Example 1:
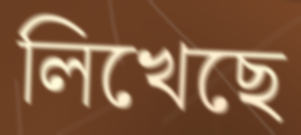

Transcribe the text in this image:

লিখেছে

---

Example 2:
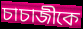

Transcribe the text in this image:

চাচাজীকে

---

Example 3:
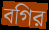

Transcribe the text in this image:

বগির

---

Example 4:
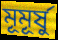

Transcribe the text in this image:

মূমূর্ষু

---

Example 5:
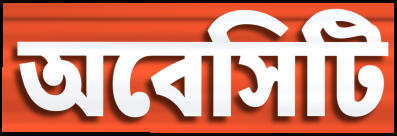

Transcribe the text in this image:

অবেসিটি